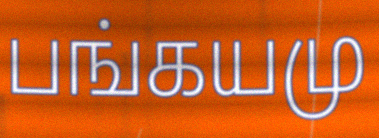
பங்கயமு